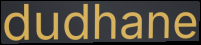
dudhane